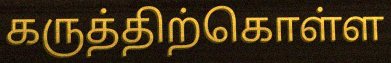
கருத்திற்கொள்ள